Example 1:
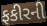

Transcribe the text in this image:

ફકીરની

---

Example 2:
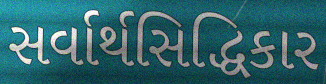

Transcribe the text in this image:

સર્વાર્થસિદ્ધિકાર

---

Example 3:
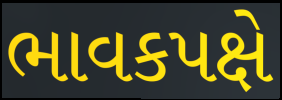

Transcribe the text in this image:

ભાવકપક્ષે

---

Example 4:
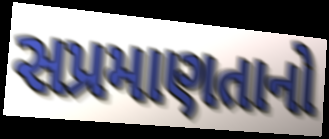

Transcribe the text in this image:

સપ્રમાણતાનો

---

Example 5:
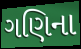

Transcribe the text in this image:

ગણિના